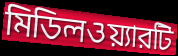
মিডিলওয়্যারটি